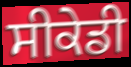
ਸੀਕੇਡੀ